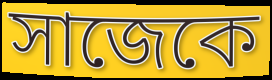
সাজেকে